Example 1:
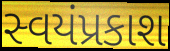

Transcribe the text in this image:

સ્વયંપ્રકાશ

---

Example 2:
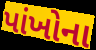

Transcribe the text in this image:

પાંખોના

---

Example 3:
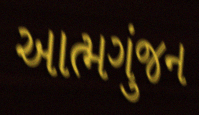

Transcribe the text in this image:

આત્મગુંજન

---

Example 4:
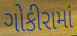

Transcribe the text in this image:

ગોકીરામાં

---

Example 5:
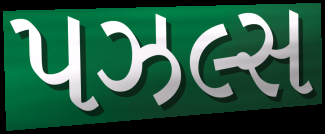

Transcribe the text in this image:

પઝલ્સ